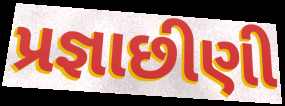
પ્રજ્ઞાછીણી